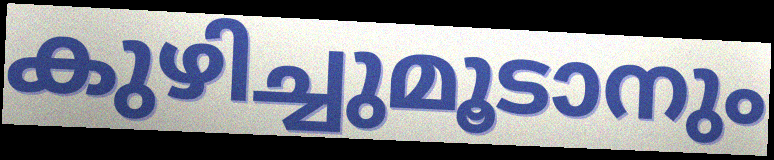
കുഴിച്ചുമൂടാനും